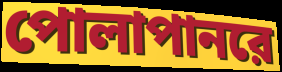
পোলাপানরে